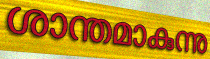
ശാന്തമാകുന്നു